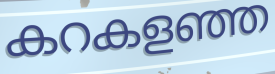
കറകളഞ്ഞ